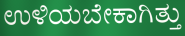
ಉಳಿಯಬೇಕಾಗಿತ್ತು